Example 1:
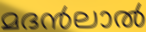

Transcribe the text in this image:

മദൻലാൽ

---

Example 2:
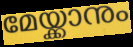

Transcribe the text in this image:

മേയ്ക്കാനും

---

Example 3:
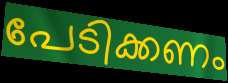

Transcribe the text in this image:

പേടിക്കണം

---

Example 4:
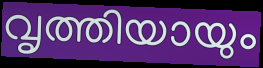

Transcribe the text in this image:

വൃത്തിയായും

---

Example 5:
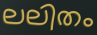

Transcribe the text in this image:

ലലിതം